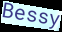
Bessy